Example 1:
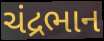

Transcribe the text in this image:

ચંદ્રભાન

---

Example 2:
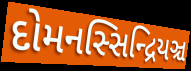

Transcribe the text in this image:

દોમનસ્સિન્દ્રિયઞ્ચ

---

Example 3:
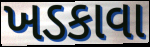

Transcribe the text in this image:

ખડકાવા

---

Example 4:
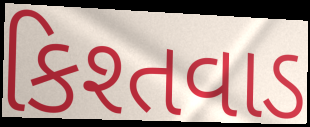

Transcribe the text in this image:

કિશ્તવાડ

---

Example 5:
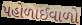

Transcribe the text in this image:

પહોળાઈવાળો